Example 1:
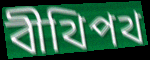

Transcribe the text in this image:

বীথিপথ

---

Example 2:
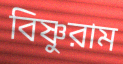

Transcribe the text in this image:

বিষ্ণুরাম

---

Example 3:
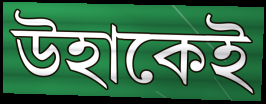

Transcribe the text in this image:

উহাকেই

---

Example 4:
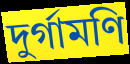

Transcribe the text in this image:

দুর্গামণি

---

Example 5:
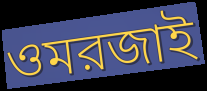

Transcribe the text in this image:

ওমরজাই